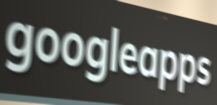
googleapps